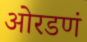
ओरडणं